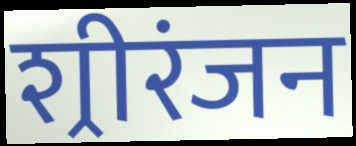
श्रीरंजन